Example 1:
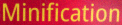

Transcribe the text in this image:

Minification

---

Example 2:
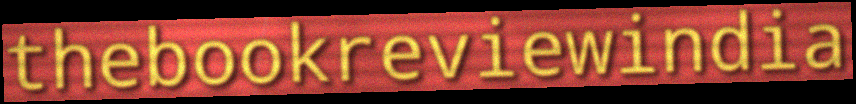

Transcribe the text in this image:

thebookreviewindia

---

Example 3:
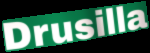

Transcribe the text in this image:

Drusilla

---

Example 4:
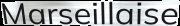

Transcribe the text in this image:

Marseillaise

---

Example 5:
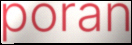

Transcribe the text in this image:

poran